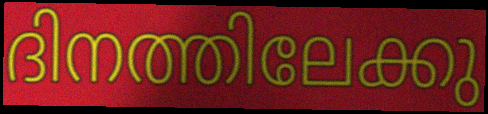
ദിനത്തിലേക്കു